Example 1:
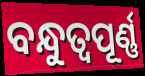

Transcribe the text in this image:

ବନ୍ଧୁତ୍ଵପୂର୍ଣ୍ଣ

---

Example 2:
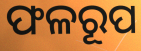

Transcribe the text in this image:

ଫଳରୂପ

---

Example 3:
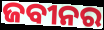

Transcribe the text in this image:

ଜବୀନର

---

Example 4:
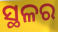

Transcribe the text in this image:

ସ୍ଥଳର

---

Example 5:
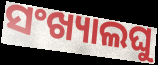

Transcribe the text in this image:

ସଂଖ୍ୟାଲଘୁ